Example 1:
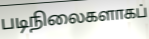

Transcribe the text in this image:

படிநிலைகளாகப்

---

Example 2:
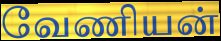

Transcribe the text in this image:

வேணியன்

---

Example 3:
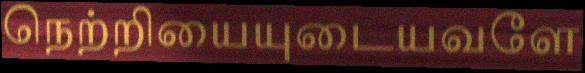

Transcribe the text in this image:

நெற்றியையுடையவளே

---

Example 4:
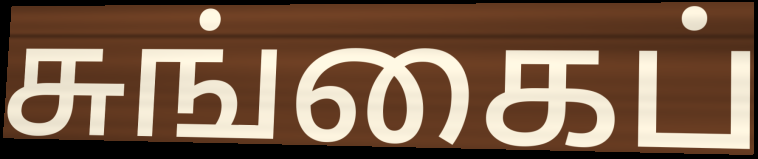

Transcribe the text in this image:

சுங்கைப்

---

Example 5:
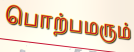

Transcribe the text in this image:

பொற்பமரும்